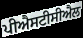
ਪੀਐਸਟੀਸੀਐਲ